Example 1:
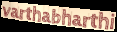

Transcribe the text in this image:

varthabharthi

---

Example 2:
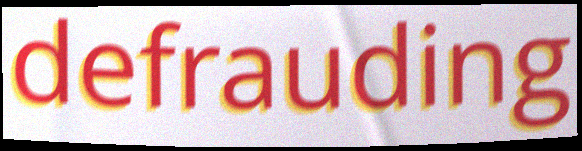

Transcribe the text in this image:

defrauding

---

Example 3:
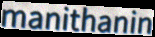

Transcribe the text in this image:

manithanin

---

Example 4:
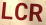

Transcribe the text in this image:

LCR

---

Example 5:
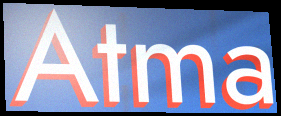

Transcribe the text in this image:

Atma